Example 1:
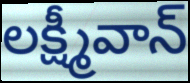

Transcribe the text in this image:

లక్ష్మీవాన్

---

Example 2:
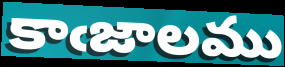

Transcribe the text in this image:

కాఁజాలము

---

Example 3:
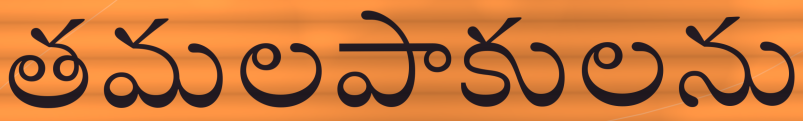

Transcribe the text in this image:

తమలపాకులను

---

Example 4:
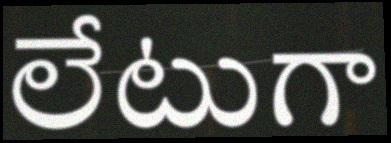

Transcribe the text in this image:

లేటుగా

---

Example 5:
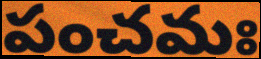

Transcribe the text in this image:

పంచమః